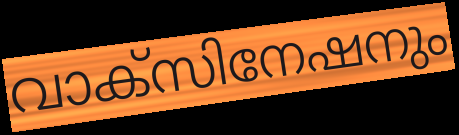
വാക്സിനേഷനും